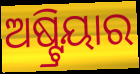
ଅଷ୍ଟ୍ରିୟାର